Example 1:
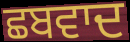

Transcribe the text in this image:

ਛਬਵਾਦ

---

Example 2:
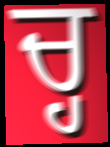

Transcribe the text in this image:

ਚ੍ਹ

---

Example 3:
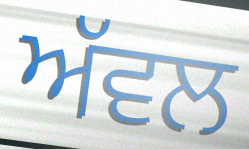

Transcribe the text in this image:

ਅੱਵਲ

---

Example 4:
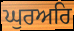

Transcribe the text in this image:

ਘੁਰਅਰਿ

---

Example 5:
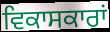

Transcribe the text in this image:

ਵਿਕਾਸਕਾਰਾਂ